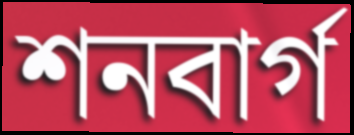
শনবার্গ